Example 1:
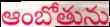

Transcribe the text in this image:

ఆంబోతును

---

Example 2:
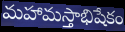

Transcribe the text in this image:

మహామస్తాభిషేకం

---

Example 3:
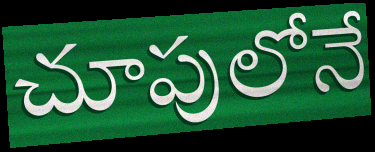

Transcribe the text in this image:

చూపులోనే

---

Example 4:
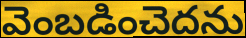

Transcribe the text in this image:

వెంబడించెదను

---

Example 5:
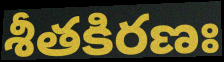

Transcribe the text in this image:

శీతకిరణః